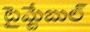
టైమ్టేబుల్